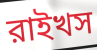
রাইখস